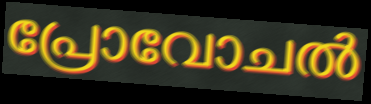
പ്രോവോചൽ